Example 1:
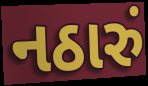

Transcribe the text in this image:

નઠારું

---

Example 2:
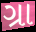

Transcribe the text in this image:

ગ્રા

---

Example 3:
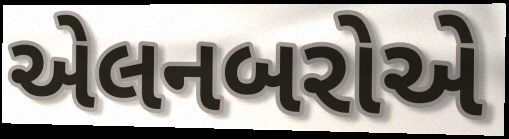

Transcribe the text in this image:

એલનબરોએ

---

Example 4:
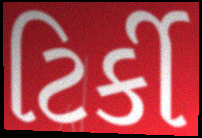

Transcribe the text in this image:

ટિર્કી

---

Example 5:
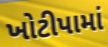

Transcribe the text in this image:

ખોટીપામાં